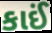
કાઈં